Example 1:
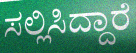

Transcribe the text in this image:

ಸಲ್ಲಿಸಿದ್ದಾರೆ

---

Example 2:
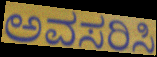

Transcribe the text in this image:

ಅವಸರಿಸಿ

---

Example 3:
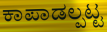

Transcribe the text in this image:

ಕಾಪಾಡಲ್ಪಟ್ಟ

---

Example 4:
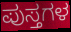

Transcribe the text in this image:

ಪುಸ್ತಗಳ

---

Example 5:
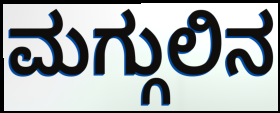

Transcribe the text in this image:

ಮಗ್ಗುಲಿನ